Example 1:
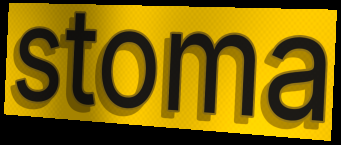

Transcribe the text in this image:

stoma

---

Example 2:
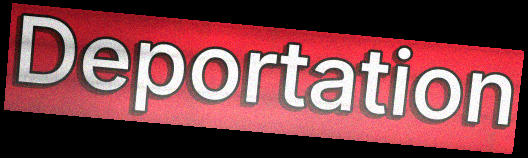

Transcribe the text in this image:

Deportation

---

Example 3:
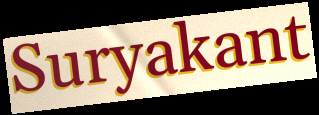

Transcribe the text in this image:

Suryakant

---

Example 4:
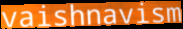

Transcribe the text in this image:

vaishnavism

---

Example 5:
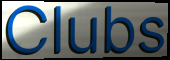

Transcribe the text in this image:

Clubs